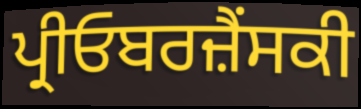
ਪ੍ਰੀਓਬਰਜ਼ੈਂਸਕੀ